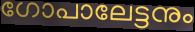
ഗോപാലേട്ടനും